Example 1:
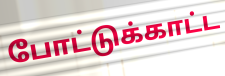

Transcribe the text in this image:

போட்டுக்காட்ட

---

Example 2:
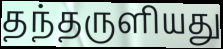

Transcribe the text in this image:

தந்தருளியது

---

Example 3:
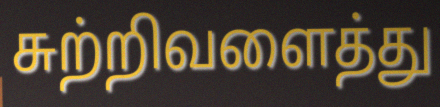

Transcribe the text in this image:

சுற்றிவளைத்து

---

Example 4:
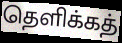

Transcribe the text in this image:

தெளிக்கத்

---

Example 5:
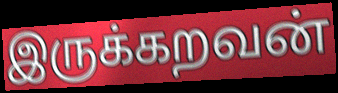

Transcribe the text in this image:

இருக்கறவன்